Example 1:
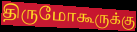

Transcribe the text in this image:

திருமோகூருக்கு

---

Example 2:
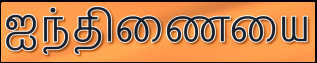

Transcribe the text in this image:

ஐந்திணையை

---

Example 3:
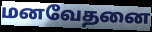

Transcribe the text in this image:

மனவேதனை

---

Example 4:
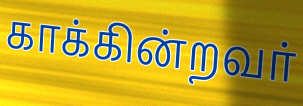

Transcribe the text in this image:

காக்கின்றவர்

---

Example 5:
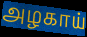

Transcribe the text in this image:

அழகாய்